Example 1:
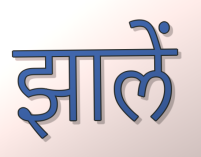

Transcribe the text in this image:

झालें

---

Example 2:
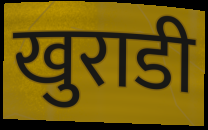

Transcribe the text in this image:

खुराडी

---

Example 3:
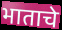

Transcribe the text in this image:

भाताचे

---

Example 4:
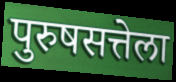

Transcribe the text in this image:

पुरुषसत्तेला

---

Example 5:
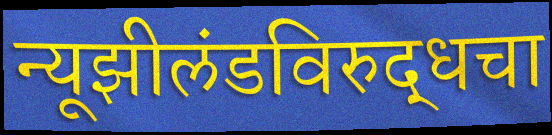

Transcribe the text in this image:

न्यूझीलंडविरुद्धचा